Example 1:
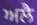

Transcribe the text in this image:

ਅਲੈ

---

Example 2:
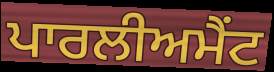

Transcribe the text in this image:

ਪਾਰਲੀਅਮੈਂਟ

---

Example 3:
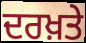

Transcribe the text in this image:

ਦਰਖ਼ਤੇ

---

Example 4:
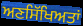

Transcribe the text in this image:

ਅਣਸਿੱਖਿਅਤਾਂ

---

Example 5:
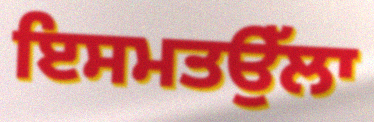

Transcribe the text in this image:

ਇਸਮਤਉੱਲਾ